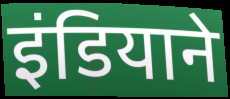
इंडियाने